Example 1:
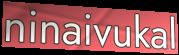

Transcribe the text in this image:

ninaivukal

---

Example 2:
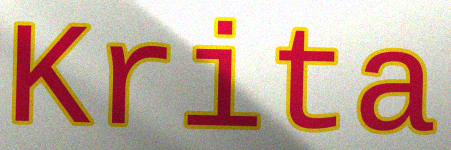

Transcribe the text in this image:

Krita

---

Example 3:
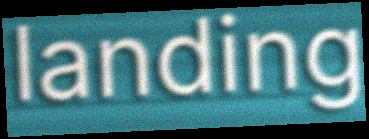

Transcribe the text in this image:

landing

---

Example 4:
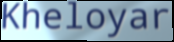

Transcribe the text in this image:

Kheloyar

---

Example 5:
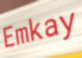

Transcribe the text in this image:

Emkay